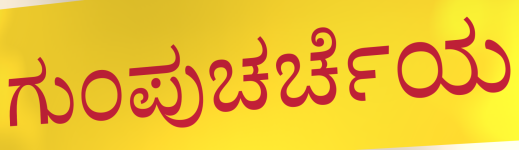
ಗುಂಪುಚರ್ಚೆಯ